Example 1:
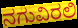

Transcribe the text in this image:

ನಗುವಿರಲಿ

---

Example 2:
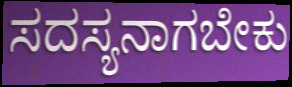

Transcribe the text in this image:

ಸದಸ್ಯನಾಗಬೇಕು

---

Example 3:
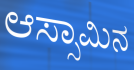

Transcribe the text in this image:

ಆಸ್ಸಾಮಿನ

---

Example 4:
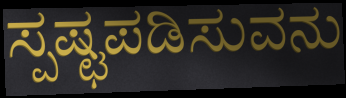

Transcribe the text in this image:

ಸ್ಪಷ್ಟಪಡಿಸುವನು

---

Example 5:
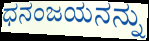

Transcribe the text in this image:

ಧನಂಜಯನನ್ನು